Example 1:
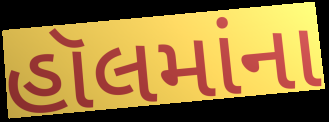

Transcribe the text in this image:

હૉલમાંના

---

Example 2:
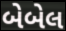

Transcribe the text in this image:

બેબેલ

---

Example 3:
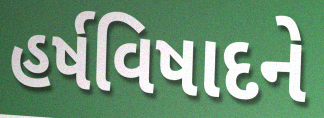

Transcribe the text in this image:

હર્ષવિષાદને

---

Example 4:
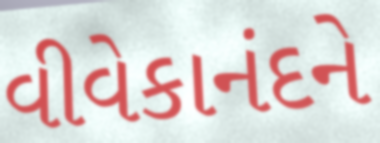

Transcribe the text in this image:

વીવેકાનંદને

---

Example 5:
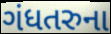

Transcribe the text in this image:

ગંધતરુના